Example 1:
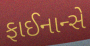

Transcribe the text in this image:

ફાઈનાન્સે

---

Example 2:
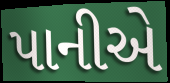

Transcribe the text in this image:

પાનીએ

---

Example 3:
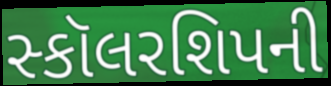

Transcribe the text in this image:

સ્કૉલરશિપની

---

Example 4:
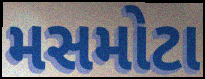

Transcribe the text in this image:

મસમોટા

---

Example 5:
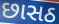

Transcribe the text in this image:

છાસઠ